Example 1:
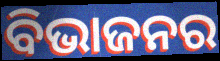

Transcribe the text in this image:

ବିଭାଜନର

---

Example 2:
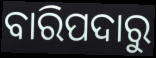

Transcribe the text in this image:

ବାରିପଦାରୁ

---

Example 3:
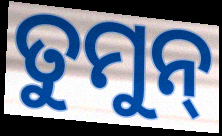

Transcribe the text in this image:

ତୁମୁନ୍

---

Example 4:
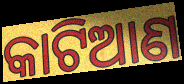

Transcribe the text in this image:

କାଟିଆଣ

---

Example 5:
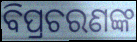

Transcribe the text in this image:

ବିପ୍ରଚରଣଙ୍କ